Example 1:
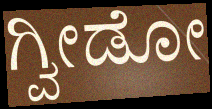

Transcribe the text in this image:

ಗ್ವೀಡೋ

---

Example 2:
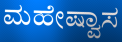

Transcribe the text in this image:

ಮಹೇಷ್ವಾಸ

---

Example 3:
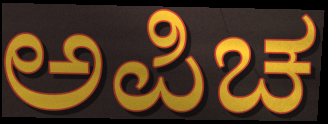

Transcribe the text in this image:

ಅಪಿಚ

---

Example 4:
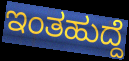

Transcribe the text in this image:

ಇಂತಹುದ್ದೆ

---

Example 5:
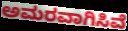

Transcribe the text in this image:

ಅಮರವಾಗಿಸಿವೆ